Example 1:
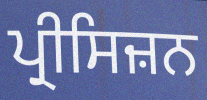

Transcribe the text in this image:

ਪ੍ਰੀਸਿਜ਼ਨ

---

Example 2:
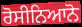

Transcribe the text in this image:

ਰੋਸੀਨਿਆਨੋ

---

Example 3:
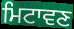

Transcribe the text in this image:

ਮਿਟਾਵਣ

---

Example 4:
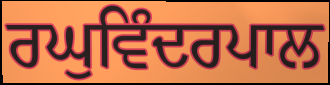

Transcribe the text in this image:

ਰਘੁਵਿੰਦਰਪਾਲ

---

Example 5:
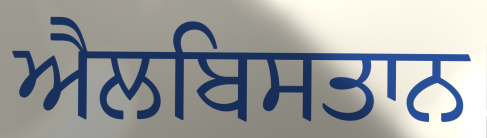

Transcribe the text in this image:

ਐਲਬਿਸਤਾਨ